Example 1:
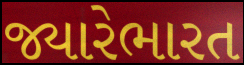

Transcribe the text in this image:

જ્યારેભારત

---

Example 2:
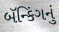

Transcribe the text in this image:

બૅન્કિંગનું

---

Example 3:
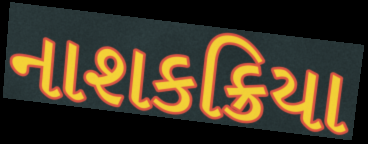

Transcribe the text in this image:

નાશકક્રિયા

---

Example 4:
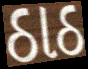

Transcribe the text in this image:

ઠાઠ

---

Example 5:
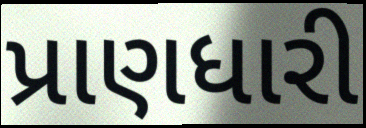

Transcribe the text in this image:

પ્રાણધારી